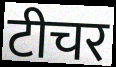
टीचर